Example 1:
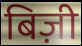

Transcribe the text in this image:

बिज़ी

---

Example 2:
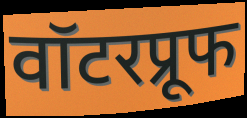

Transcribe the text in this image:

वॉटरप्रूफ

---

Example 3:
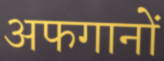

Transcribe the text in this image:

अफगानों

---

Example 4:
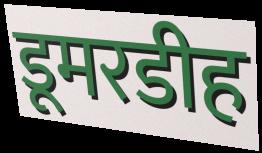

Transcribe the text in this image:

डूमरडीह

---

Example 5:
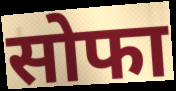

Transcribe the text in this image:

सोफा